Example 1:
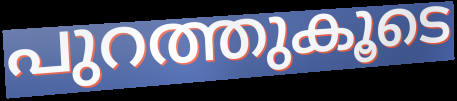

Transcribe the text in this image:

പുറത്തുകൂടെ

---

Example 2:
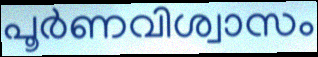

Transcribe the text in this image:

പൂർണവിശ്വാസം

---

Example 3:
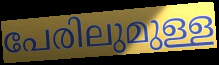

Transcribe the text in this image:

പേരിലുമുള്ള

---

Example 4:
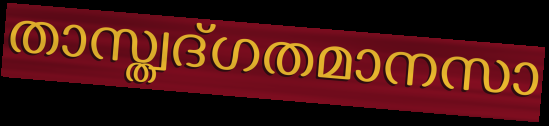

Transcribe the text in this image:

താസ്ത്വദ്ഗതമാനസാ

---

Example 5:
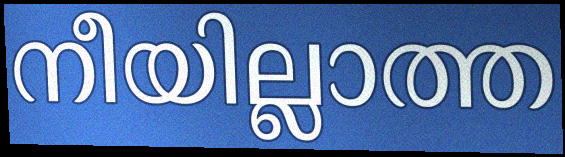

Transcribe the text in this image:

നീയില്ലാത്ത